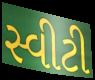
સ્વીટી